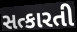
સત્કારતી